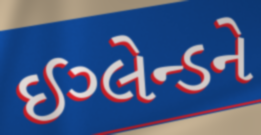
ઈગ્લેન્ડને